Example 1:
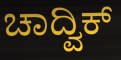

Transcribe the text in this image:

ಚಾದ್ವಿಕ್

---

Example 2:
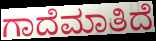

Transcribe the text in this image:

ಗಾದೆಮಾತಿದೆ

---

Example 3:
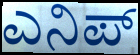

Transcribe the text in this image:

ಎನಿಪ್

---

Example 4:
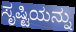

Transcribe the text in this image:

ಸೃಷ್ಟಿಯನ್ನು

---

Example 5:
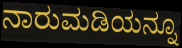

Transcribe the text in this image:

ನಾರುಮಡಿಯನ್ನೂ